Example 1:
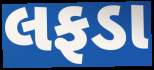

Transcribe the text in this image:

લફડા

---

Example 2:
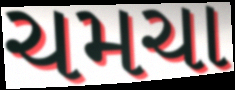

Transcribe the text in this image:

ચમચા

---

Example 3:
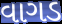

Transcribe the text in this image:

વાગડ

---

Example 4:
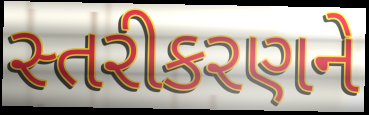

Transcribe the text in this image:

સ્તરીકરણને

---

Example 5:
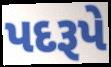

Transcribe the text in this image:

પદરૂપે